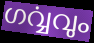
ഗൎവ്വവും